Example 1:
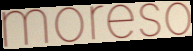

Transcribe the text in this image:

moreso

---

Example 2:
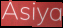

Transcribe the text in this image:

Asiya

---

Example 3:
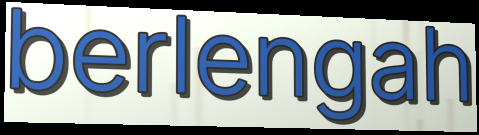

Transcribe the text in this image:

berlengah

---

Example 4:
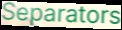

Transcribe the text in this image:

Separators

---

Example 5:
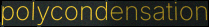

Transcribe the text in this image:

polycondensation